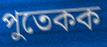
পুতেকক